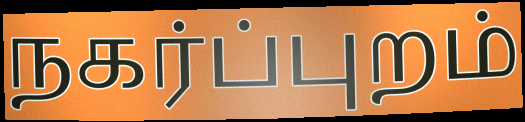
நகர்ப்புறம்